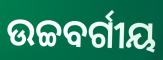
ଉଚ୍ଚବର୍ଗୀୟ